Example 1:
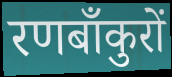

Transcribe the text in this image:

रणबाँकुरों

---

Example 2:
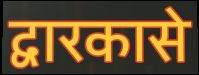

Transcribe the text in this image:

द्वारकासे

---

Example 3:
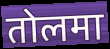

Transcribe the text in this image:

तोलमा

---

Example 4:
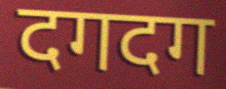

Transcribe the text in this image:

दगदग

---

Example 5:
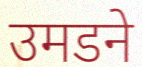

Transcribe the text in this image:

उमडने